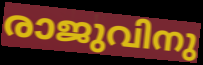
രാജുവിനു